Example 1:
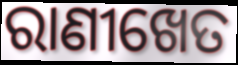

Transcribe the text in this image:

ରାଣୀଖେତ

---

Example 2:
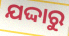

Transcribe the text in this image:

ଯଦ୍ଦାରୁ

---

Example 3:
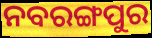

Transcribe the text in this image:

ନବରଙ୍ଗପୁର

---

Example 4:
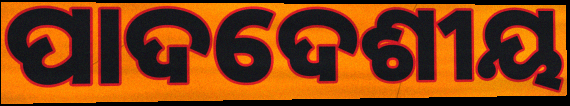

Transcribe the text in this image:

ପାଦଦେଶୀୟ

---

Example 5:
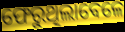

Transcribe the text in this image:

ଫେରୁଥିଲାବେଳେ